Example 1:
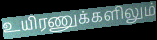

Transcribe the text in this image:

உயிரணுக்களிலும்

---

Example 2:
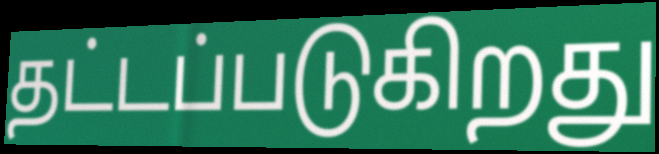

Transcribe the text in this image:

தட்டப்படுகிறது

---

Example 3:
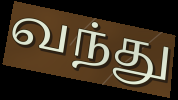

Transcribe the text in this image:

வந்து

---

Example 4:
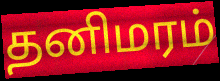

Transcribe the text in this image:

தனிமரம்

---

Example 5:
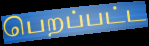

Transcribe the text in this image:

பெறப்பட்ட